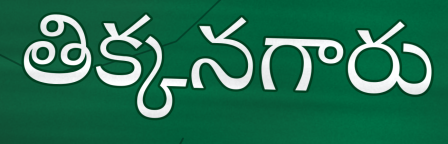
తిక్కనగారు